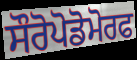
ਸੌਰੋਪੋਡੋਮੋਰਫ